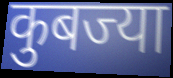
कुबज्या